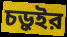
চড়ুইর